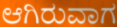
ಆಗಿರುವಾಗ